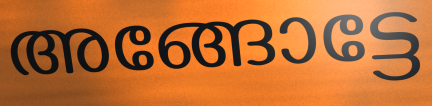
അങ്ങോട്ടേ